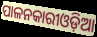
ପାଳନକାରୀଓଡ଼ିଆ